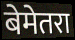
बेमेतरा